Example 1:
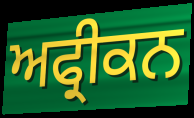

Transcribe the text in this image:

ਅਫ੍ਰੀਕਨ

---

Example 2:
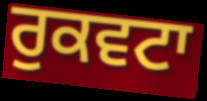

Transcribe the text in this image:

ਰੁਕਵਟਾ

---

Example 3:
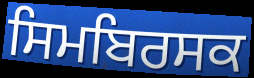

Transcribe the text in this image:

ਸਿਮਬਿਰਸਕ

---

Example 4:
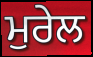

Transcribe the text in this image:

ਮੁਰੇਲ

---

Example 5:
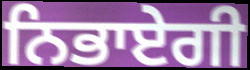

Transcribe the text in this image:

ਨਿਭਾਏਗੀ